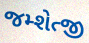
જમ્શેત્જી